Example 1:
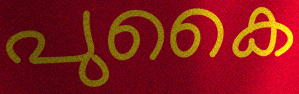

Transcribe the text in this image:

പുകൈ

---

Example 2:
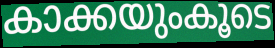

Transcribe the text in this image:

കാക്കയുംകൂടെ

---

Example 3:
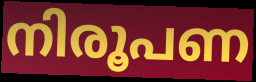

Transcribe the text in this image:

നിരൂപണ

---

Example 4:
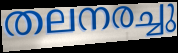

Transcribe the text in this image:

തലനരച്ചു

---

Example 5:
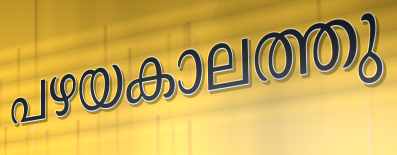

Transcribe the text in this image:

പഴയകാലത്തു